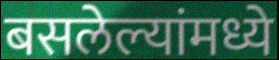
बसलेल्यांमध्ये